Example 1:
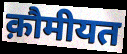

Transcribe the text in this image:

क़ौमीयत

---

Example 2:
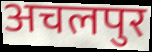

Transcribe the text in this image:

अचलपुर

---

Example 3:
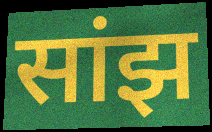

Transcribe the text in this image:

सांझ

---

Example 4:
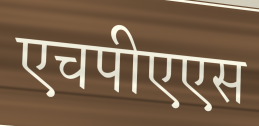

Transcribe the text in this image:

एचपीएएस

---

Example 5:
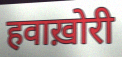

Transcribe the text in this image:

हवाख़ोरी